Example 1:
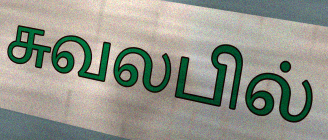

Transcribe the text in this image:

சுவலபில்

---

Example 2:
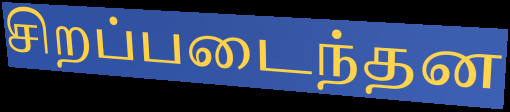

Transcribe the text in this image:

சிறப்படைந்தன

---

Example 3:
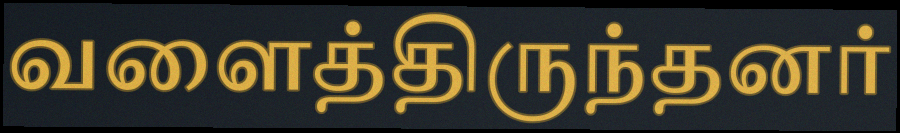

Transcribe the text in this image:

வளைத்திருந்தனர்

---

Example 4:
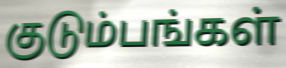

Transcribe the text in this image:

குடும்பங்கள்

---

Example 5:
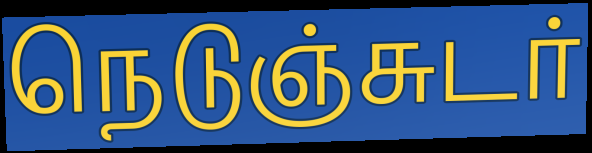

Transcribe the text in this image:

நெடுஞ்சுடர்